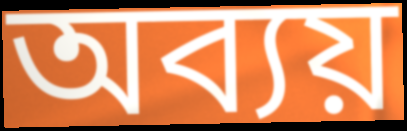
অব্যয়